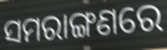
ସମରାଙ୍ଗଣରେ